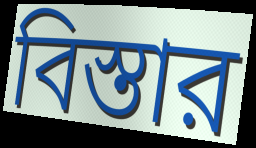
বিস্তার